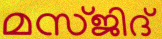
മസ്ജിദ്